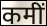
कमीं